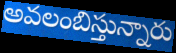
అవలంబిస్తున్నారు